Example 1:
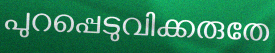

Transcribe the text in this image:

പുറപ്പെടുവിക്കരുതേ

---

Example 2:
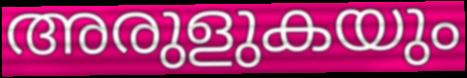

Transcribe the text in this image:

അരുളുകയും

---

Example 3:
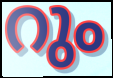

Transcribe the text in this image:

റും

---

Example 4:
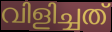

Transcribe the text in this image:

വിളിച്ചത്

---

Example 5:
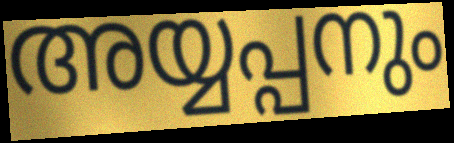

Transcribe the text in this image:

അയ്യപ്പനും